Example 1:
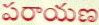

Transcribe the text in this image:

పరాయణ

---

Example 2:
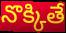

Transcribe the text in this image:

నొక్కితే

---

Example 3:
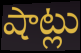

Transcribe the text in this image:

షాట్లు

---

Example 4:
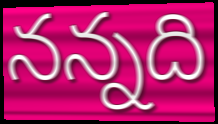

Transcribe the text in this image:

నన్నది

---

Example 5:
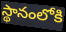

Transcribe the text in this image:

స్థానంలోకి